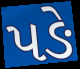
પઙે